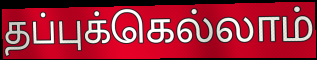
தப்புக்கெல்லாம்